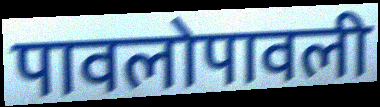
पावलोपावली